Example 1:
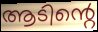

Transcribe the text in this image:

ആടിന്റെ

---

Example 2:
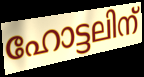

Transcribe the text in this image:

ഹോട്ടലിന്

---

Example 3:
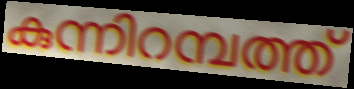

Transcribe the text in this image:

കുന്നിറമ്പത്ത്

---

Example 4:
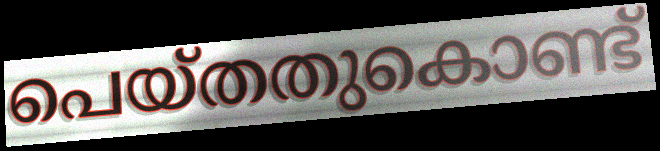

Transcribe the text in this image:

പെയ്തതുകൊണ്ട്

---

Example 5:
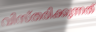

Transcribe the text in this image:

വിസ്തരിക്കുന്നത്